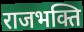
राजभक्ति